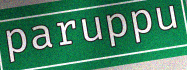
paruppu